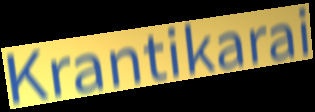
Krantikarai